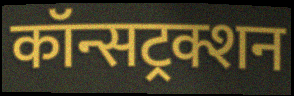
कॉन्सट्रक्शन